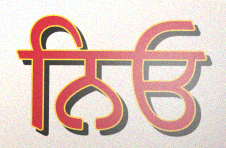
ਨਿਓ